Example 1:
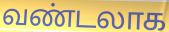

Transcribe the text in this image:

வண்டலாக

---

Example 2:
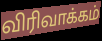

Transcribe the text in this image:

விரிவாக்கம்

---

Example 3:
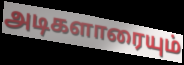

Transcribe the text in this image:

அடிகளாரையும்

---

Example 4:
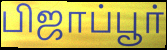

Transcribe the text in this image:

பிஜாப்பூர்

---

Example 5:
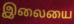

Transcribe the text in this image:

இலையை